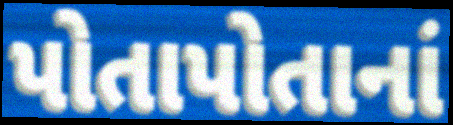
પોતાપોતાનાં